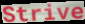
Strive